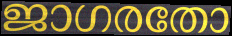
ജാഗരതോ